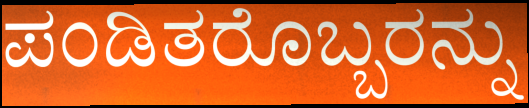
ಪಂಡಿತರೊಬ್ಬರನ್ನು